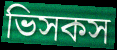
ভিসকস